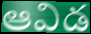
ఆవిడ